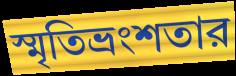
স্মৃতিভ্রংশতার